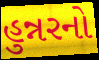
હુન્નરનો